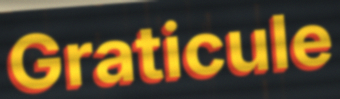
Graticule